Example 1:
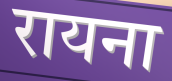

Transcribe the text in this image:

रायना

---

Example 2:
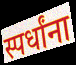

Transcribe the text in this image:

स्पर्धांना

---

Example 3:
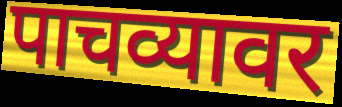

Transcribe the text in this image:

पाचव्यावर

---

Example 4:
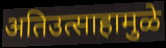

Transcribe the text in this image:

अतिउत्साहामुळे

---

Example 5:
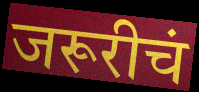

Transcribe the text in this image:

जरूरीचं